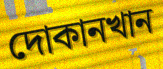
দোকানখান